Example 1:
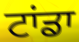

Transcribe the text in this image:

ਟਾਂਡਾ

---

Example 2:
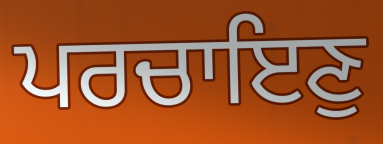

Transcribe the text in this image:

ਪਰਚਾਇਣੁ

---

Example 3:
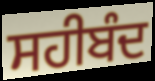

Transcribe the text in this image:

ਸਹੀਬੰਦ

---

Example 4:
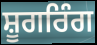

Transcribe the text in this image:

ਸ਼ੂਗਰਿੰਗ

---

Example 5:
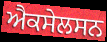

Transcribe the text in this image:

ਐਕਸੇਲਸਨ